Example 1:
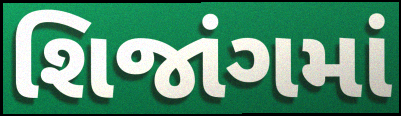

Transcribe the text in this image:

શિજાંગમાં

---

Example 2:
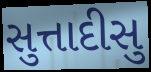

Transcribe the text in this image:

સુત્તાદીસુ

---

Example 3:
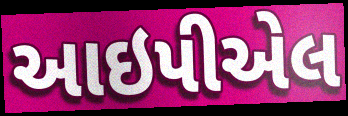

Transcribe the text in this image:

આઇપીએલ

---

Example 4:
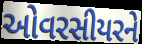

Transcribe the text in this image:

ઓવરસીયરને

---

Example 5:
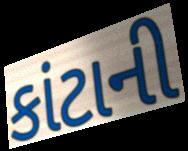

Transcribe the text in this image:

કાંટાની